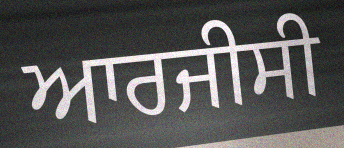
ਆਰਜੀਸੀ